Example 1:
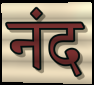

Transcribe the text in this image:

नंद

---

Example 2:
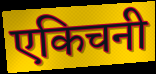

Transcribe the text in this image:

एकिचनी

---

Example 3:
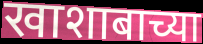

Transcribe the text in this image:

खाशाबाच्या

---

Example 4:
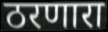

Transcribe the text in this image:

ठरणारा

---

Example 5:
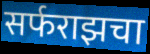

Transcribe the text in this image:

सर्फराझचा